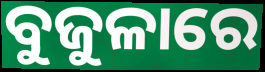
ବୁଜୁଳାରେ